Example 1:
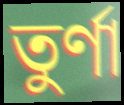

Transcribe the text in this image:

তুর্ণা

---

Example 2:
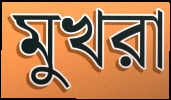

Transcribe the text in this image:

মুখরা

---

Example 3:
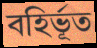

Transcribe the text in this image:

বহির্ভূত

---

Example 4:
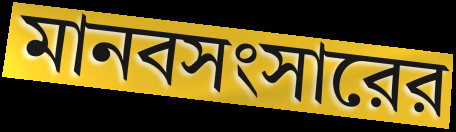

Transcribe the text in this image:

মানবসংসারের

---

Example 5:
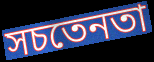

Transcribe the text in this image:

সচতেনতা